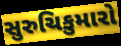
સુરુચિકુમારો